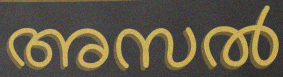
അസൽ